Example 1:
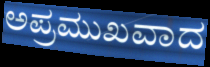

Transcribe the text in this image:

ಅಪ್ರಮುಖವಾದ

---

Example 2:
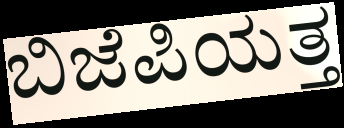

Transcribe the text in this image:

ಬಿಜೆಪಿಯತ್ತ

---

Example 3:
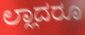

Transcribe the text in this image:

ಲ್ಲಾದರೂ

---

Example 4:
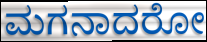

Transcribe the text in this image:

ಮಗನಾದರೋ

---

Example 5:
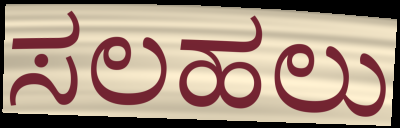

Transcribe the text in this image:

ಸಲಹಲು